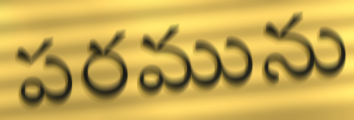
పరమును